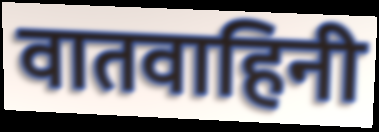
वातवाहिनी